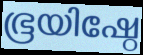
ഭൂയിഷ്ഠേ